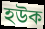
হউক